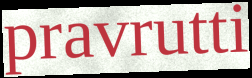
pravrutti